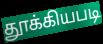
தூக்கியபடி